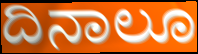
ದಿನಾಲೂ